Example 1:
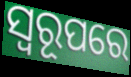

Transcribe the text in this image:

ସ୍ଵରୂପରେ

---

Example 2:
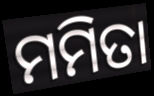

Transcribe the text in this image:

ମମିତା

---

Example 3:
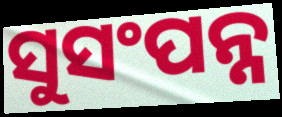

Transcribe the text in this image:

ସୁସଂପନ୍ନ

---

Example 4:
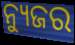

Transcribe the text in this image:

ନ୍ୟୁଜର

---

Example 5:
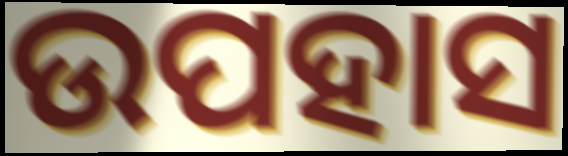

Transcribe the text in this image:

ଉପହାସ